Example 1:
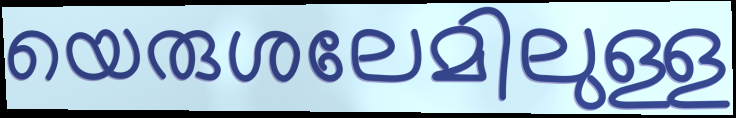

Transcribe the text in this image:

യെരുശലേമിലുള്ള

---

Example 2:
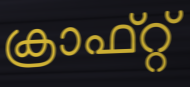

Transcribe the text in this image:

ക്രാഫ്റ്റ്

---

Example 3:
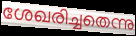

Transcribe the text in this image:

ശേഖരിച്ചതെന്നു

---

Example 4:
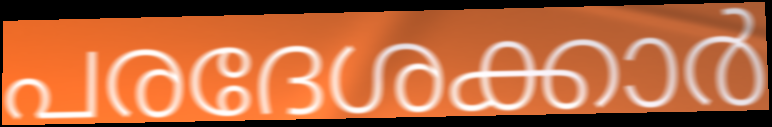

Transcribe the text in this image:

പരദേശക്കാർ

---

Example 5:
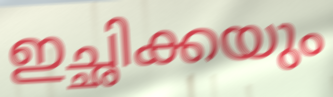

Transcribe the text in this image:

ഇച്ഛിക്കയും